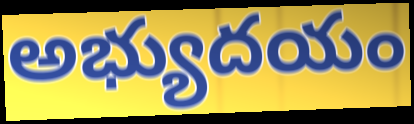
అభ్యుదయం